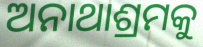
ଅନାଥାଶ୍ରମକୁ